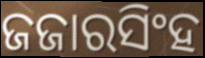
ଜଜାରସିଂହ